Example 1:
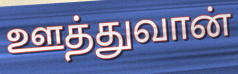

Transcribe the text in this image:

ஊத்துவான்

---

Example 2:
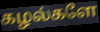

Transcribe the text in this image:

கழல்களே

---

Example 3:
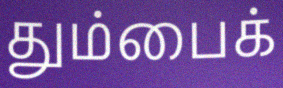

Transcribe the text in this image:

தும்பைக்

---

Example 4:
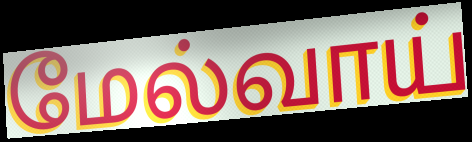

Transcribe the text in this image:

மேல்வாய்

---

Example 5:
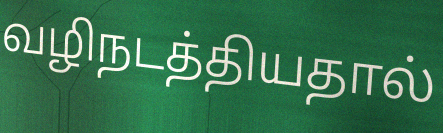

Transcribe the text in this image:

வழிநடத்தியதால்